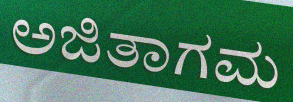
ಅಜಿತಾಗಮ